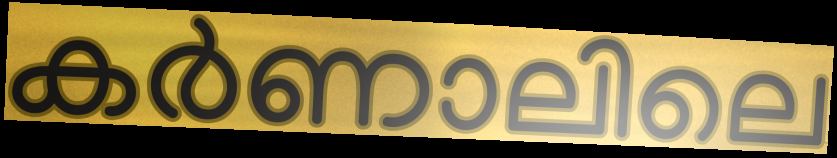
കർണാലിലെ